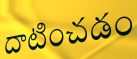
దాటించడం